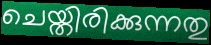
ചെയ്തിരിക്കുന്നതു